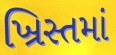
ખ્રિસ્તમાં